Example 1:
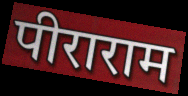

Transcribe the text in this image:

पीराराम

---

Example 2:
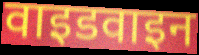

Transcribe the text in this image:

वाइडवाइन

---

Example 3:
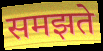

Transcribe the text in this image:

समझते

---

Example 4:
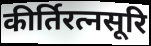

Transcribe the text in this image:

कीर्तिरत्नसूरि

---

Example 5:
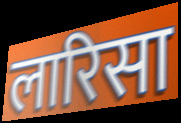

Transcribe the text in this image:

लारिसा